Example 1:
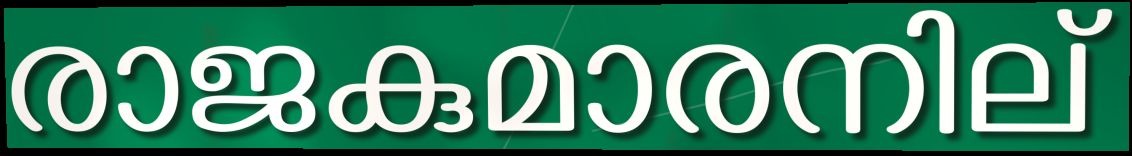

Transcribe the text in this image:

രാജകുമാരനില്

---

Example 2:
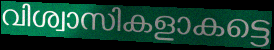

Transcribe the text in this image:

വിശ്വാസികളാകട്ടെ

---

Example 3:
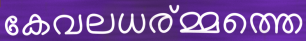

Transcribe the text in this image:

കേവലധര്മ്മത്തെ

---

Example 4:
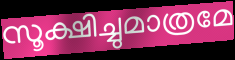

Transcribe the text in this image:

സൂക്ഷിച്ചുമാത്രമേ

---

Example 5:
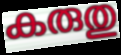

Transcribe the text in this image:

കരുതു